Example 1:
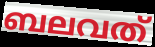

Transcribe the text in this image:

ബലവത്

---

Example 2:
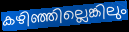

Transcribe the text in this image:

കഴിഞ്ഞില്ലെങ്കിലും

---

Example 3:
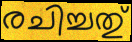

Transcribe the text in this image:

രചിച്ചതു്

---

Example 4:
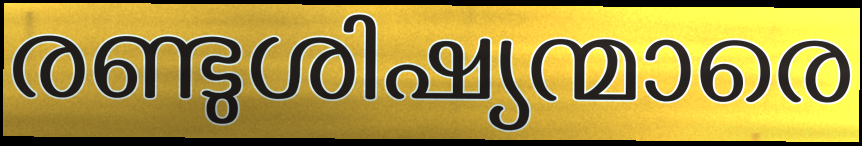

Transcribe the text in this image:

രണ്ടുശിഷ്യന്മാരെ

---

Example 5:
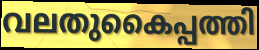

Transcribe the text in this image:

വലതുകൈപ്പത്തി